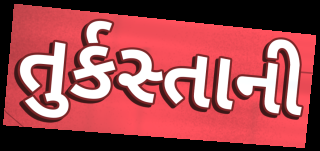
તુર્કસ્તાની